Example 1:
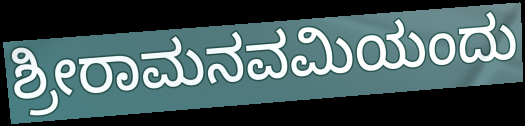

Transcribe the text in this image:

ಶ್ರೀರಾಮನವಮಿಯಂದು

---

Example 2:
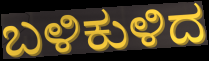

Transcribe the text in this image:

ಬಳಿಕುಳಿದ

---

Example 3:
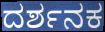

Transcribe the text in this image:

ದರ್ಶನಕ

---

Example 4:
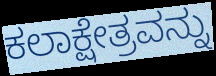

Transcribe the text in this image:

ಕಲಾಕ್ಷೇತ್ರವನ್ನು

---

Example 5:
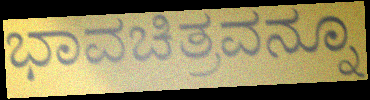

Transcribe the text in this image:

ಭಾವಚಿತ್ರವನ್ನೂ